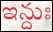
ఇన్దుః